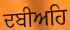
ਦਬੀਅਹਿ